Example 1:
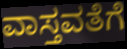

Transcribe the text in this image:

ವಾಸ್ತವತೆಗೆ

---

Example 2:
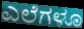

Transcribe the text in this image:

ಎಲೆಗಳೂ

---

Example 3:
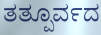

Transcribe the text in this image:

ತತ್ಪೂರ್ವದ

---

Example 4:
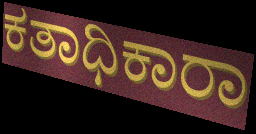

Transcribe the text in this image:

ಕತಾಧಿಕಾರಾ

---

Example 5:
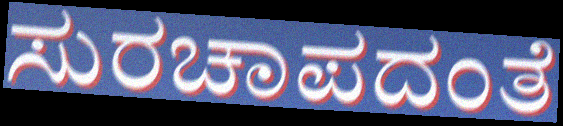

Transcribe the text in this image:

ಸುರಚಾಪದಂತೆ